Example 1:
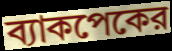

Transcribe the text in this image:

ব্যাকপেকের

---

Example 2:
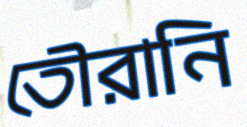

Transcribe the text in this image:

তৌরানি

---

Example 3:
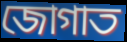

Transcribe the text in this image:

জোগাত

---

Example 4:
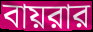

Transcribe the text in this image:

বায়রার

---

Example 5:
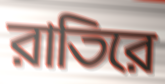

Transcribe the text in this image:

রাতিরে